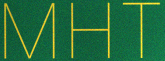
MHT